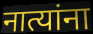
नात्यांना